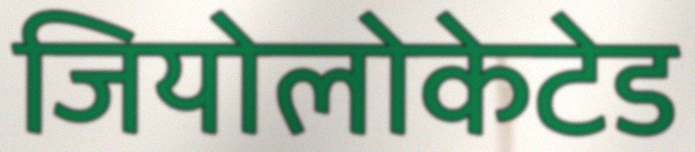
जियोलोकेटेड